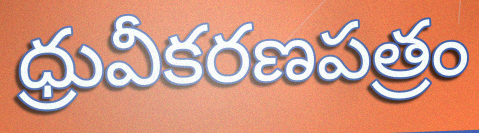
ధ్రువీకరణపత్రం